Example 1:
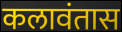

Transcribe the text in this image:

कलावंतास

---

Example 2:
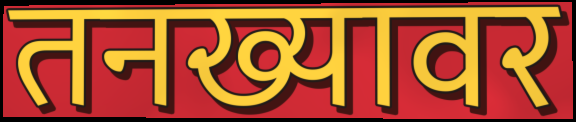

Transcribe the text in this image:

तनख्यावर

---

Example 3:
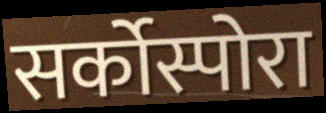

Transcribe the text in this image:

सर्कोस्पोरा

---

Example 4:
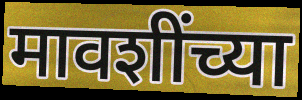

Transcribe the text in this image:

मावशींच्या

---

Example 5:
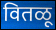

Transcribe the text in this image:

वितळू